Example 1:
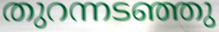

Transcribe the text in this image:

തുറന്നടഞ്ഞു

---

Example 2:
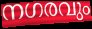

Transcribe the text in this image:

നഗരവും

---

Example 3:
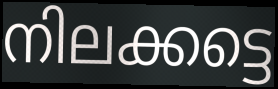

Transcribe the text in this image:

നിലക്കട്ടെ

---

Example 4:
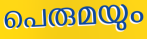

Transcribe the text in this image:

പെരുമയും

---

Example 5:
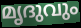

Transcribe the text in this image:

മൃദുവും